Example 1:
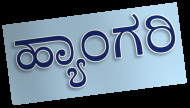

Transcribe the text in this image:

ಹ್ಯಾಂಗರಿ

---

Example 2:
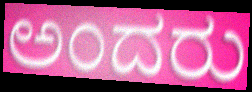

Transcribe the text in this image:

ಅಂದರು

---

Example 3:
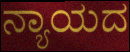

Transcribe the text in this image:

ನ್ಯಾಯದ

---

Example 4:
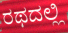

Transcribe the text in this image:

ರಥದಲ್ಲಿ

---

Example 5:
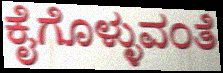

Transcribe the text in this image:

ಕೈಗೊಳ್ಳುವಂತೆ